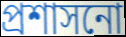
প্ৰশাসনো